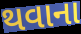
થવાના